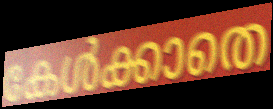
കേൾക്കാതെ